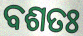
ବଶତଃ